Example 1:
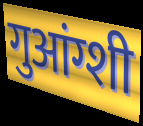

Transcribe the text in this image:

गुआंग्शी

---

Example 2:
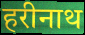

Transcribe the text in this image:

हरीनाथ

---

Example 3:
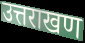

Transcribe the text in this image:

उत्तराखण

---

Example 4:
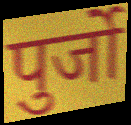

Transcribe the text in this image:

पुर्जो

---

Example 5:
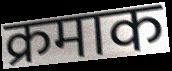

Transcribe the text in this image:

क्रमाक